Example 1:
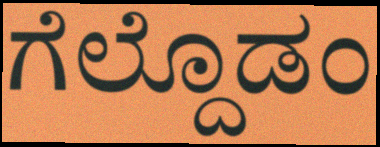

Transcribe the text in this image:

ಗೆಲ್ದೊಡಂ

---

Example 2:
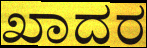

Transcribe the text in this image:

ಖಾದರ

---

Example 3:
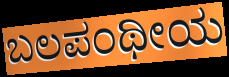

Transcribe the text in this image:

ಬಲಪಂಥೀಯ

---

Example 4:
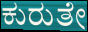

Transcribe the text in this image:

ಕುರುತೇ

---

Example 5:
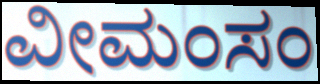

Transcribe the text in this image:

ವೀಮಂಸಂ